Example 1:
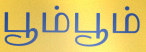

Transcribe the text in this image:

பூம்பூம்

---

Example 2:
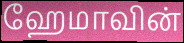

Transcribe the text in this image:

ஹேமாவின்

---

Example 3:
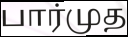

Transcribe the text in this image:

பார்முத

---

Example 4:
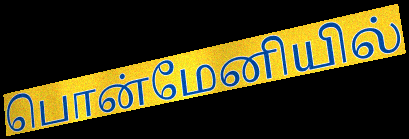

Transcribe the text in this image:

பொன்மேனியில்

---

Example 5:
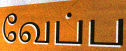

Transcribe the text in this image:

வேப்ப